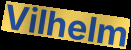
Vilhelm